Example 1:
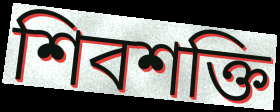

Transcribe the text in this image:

শিবশক্তি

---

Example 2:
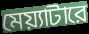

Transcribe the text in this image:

মেয়্যাটারে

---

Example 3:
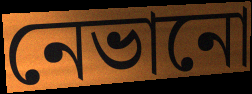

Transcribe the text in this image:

নেভানো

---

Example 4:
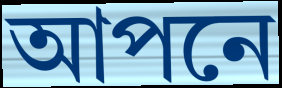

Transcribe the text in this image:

আপনে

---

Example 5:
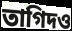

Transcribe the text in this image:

তাগিদও